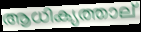
ആധിക്യത്താല്